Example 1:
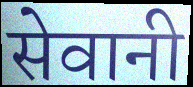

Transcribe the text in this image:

सेवानी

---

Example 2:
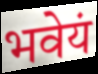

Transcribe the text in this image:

भवेयं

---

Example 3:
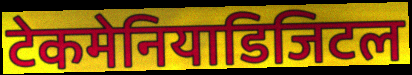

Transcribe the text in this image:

टेकमेनियाडिजिटल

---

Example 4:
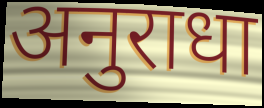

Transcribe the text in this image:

अनुराधा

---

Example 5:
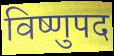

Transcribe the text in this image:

विष्णुपद